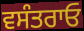
ਵਸੰਤਰਾਓ